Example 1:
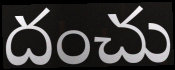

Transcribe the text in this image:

దంచు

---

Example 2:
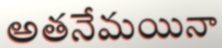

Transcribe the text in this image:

అతనేమయినా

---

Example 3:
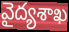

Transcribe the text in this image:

వైద్యశాఖ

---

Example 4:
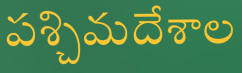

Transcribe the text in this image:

పశ్చిమదేశాల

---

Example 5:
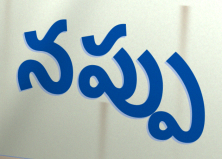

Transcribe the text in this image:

నప్పు